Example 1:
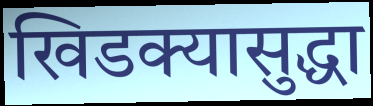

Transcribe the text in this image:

खिडक्यासुद्धा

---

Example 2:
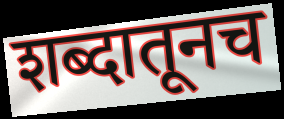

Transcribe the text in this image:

शब्दातूनच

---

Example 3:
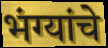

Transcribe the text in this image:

भंग्यांचे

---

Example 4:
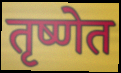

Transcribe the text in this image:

तृष्णेत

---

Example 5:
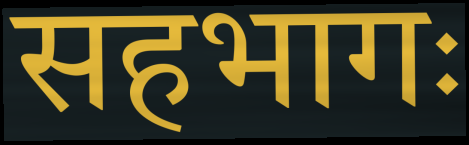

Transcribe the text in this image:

सहभागः